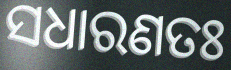
ସଧାରଣତଃ